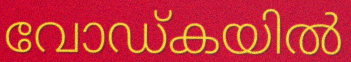
വോഡ്കയിൽ